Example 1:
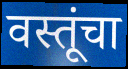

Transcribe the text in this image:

वस्तूंचा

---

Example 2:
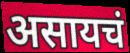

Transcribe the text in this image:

असायचं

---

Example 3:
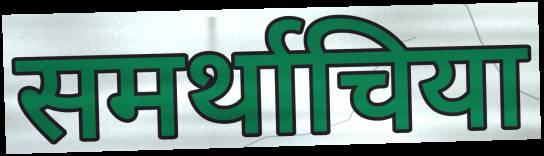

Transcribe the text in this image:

समर्थाचिया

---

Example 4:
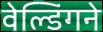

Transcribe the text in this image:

वेल्डिंगने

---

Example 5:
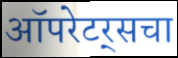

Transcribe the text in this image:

ऑपरेटर्सचा